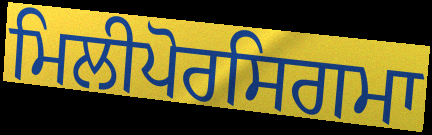
ਮਿਲੀਪੋਰਸਿਗਮਾ